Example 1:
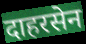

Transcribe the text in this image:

दाहरसेन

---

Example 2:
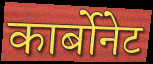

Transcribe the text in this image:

कार्बोनेट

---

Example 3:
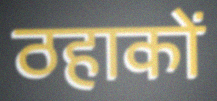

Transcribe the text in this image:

ठहाकों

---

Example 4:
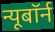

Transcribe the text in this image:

न्यूबॉर्न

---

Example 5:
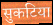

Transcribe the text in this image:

सुकटिया